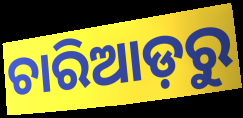
ଚାରିଆଡ଼ରୁ